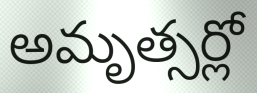
అమృత్సర్లో